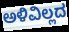
ಅಳಿವಿಲ್ಲದ